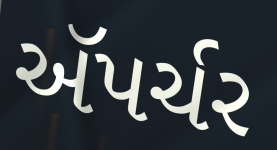
ઍપર્ચર